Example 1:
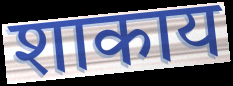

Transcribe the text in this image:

शाकाय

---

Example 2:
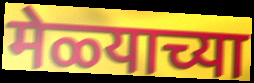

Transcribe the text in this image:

मेळ्याच्या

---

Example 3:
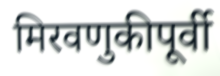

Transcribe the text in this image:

मिरवणुकीपूर्वी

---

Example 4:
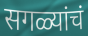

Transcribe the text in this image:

सगळ्यांचं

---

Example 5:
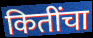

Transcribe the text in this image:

कितींचा